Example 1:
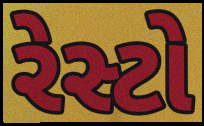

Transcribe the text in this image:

રેસ્ટો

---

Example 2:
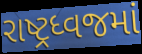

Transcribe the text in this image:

રાષ્ટ્રધ્વજમાં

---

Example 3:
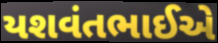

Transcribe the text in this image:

યશવંતભાઈએ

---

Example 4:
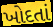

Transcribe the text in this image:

ખોદતાં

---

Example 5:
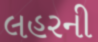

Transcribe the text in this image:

લહરની